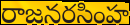
రాజనరసింహ